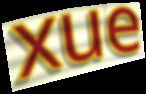
xue